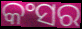
କଂସର